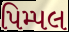
પિમ્પલ